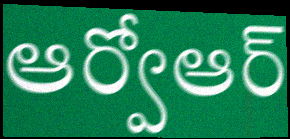
ఆర్వోఆర్